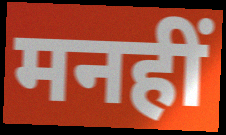
मनहीं